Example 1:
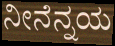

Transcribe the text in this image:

ನೀನೆನ್ನಯ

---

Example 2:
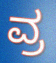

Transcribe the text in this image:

ವ್ರ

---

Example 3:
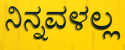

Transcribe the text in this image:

ನಿನ್ನವಳಲ್ಲ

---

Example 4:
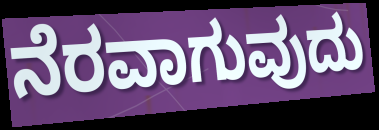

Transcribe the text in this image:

ನೆರವಾಗುವುದು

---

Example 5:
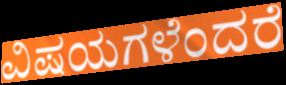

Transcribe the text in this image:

ವಿಷಯಗಳೆಂದರೆ